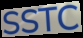
SSTC